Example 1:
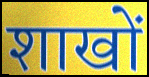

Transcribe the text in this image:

शाखों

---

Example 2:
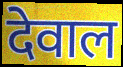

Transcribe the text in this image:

देवाल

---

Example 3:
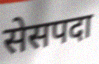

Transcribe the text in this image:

सेसपदा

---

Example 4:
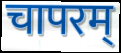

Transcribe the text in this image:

चापरम्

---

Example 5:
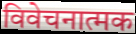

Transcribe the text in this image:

विवेचनात्‍मक